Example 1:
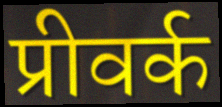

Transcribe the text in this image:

प्रीवर्क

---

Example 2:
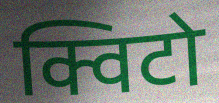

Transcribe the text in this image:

क्विटो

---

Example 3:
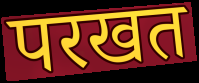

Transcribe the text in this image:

परखत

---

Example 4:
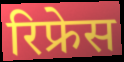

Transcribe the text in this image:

रिफ्रेस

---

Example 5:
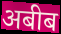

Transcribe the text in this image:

अबीब